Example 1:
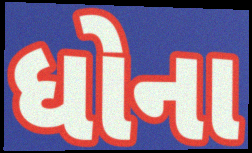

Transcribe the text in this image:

ધોના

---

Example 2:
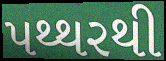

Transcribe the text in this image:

પથ્થરથી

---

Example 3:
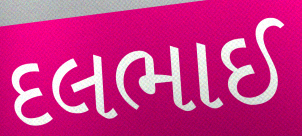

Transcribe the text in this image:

દલભાઈ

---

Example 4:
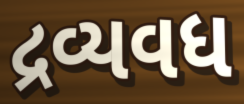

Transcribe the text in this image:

દ્રવ્યવધ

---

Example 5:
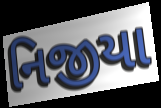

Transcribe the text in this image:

નિજીયા